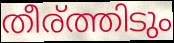
തീര്ത്തിടും